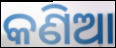
କଣିଆ